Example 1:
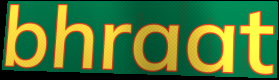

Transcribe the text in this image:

bhraat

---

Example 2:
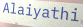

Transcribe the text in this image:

Alaiyathi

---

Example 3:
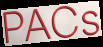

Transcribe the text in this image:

PACs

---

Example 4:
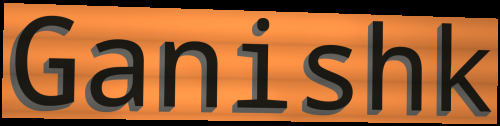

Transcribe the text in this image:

Ganishk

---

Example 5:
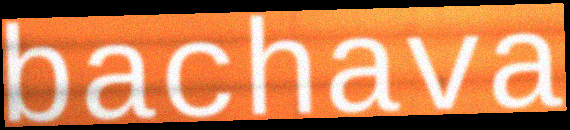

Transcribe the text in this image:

bachava